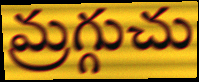
మ్రగ్గుచు